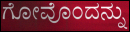
ಗೋವೊಂದನ್ನು